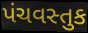
પંચવસ્તુક